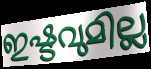
ഇഷ്ടവുമില്ല